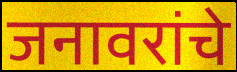
जनावरांचे